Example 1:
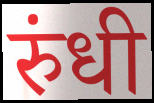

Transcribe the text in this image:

रुंधी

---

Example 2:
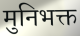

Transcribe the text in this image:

मुनिभक्त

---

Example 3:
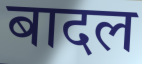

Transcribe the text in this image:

बादल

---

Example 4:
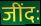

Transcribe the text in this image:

जींदः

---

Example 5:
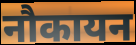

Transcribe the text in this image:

नौकायन